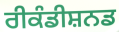
ਰੀਕੰਡੀਸ਼ਨਡ